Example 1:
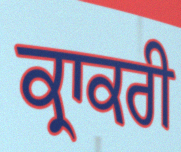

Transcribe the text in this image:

ਕ੍ਰਾਕਰੀ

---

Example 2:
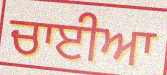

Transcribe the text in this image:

ਚਾਈਆ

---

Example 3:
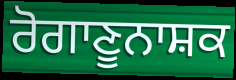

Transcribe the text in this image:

ਰੋਗਾਣੂਨਾਸ਼ਕ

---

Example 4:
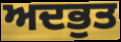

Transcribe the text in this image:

ਅਦਭੁਤ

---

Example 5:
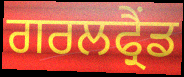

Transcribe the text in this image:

ਗਰਲਫ੍ਰੈਂਡ